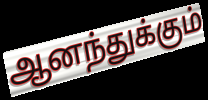
ஆனந்துக்கும்